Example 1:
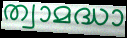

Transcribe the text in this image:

ത്വാമദ്ധാ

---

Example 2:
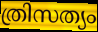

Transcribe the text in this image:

ത്രിസത്യം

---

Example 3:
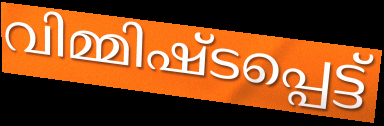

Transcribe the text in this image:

വിമ്മിഷ്ടപ്പെട്ട്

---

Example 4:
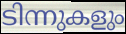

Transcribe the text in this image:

ടിന്നുകളും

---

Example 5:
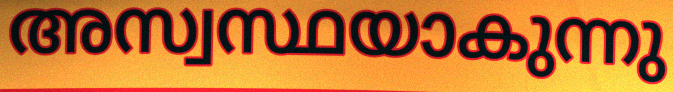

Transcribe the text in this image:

അസ്വസ്ഥയാകുന്നു